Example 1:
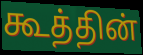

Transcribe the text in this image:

கூத்தின்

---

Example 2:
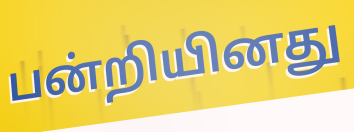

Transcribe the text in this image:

பன்றியினது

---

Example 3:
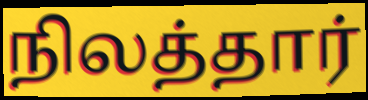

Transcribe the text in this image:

நிலத்தார்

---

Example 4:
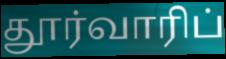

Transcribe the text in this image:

தூர்வாரிப்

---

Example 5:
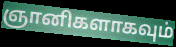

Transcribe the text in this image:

ஞானிகளாகவும்